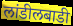
लांडीलबाडी